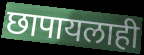
छापायलाही